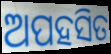
ଅପହସିତ